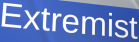
Extremist